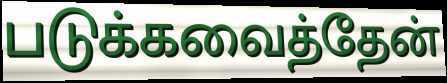
படுக்கவைத்தேன்